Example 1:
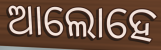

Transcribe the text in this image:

ଆଲୋହେ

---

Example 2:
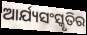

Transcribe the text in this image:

ଆର୍ଯ୍ୟସଂସ୍କୃତିର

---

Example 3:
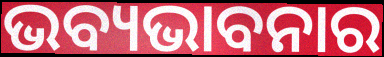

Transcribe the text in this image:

ଭବ୍ୟଭାବନାର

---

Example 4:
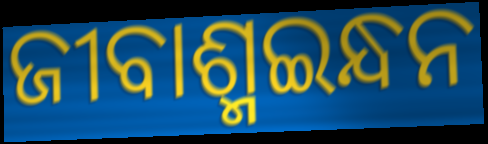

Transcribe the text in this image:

ଜୀବାଶ୍ମଇନ୍ଧନ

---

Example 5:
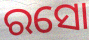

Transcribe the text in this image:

ରସୋ